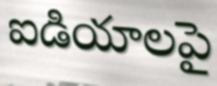
ఐడియాలపై